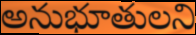
అనుభూతులని